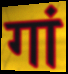
गां